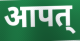
आपत्